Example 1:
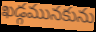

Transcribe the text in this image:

ఖడ్గమునకును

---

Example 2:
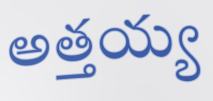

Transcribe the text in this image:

అత్తయ్య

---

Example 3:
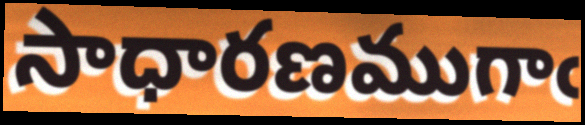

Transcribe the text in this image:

సాధారణముగాఁ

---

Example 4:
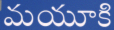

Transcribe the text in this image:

మయూకి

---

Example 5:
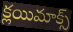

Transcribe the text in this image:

క్లయిమాక్స్